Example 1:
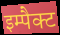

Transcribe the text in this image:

इम्पैक्ट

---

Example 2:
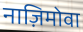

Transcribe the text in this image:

नाज़िमोवा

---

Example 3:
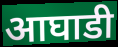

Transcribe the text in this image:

आघाडी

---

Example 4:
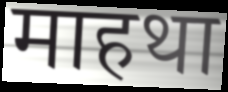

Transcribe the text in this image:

माहथा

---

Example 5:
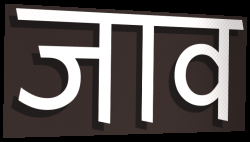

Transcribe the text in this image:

जाव